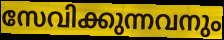
സേവിക്കുന്നവനും